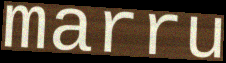
marru